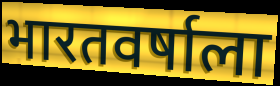
भारतवर्षाला